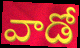
వాడో